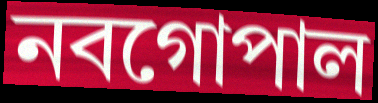
নবগোপাল